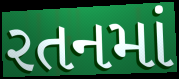
રતનમાં